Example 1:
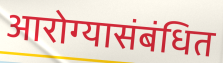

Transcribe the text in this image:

आरोग्यासंबंधित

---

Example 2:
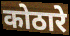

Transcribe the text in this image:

कोठारे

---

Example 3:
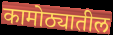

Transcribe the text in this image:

कामोठ्यातील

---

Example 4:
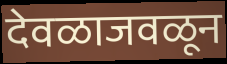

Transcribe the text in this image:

देवळाजवळून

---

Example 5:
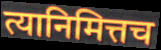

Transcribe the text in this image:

त्यानिमित्तच